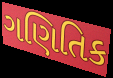
ગણિતિક